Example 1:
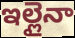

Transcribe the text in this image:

ఇల్లైనా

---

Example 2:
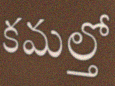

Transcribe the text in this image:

కమల్తో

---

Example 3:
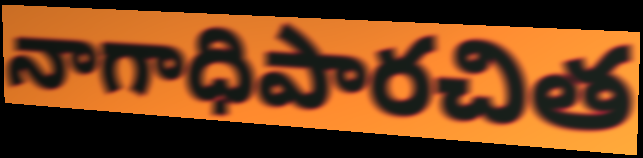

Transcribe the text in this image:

నాగాధిపారచిత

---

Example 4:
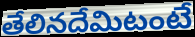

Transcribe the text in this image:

తేలినదేమిటంటే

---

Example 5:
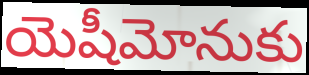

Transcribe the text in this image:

యెషీమోనుకు